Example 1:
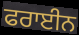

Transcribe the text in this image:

ਫਰਾਈਨ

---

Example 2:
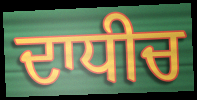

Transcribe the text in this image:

ਦਾਧੀਚ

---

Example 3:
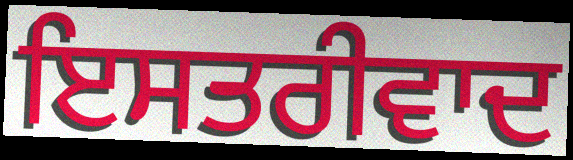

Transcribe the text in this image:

ਇਸਤਰੀਵਾਦ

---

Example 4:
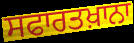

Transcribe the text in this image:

ਸਫਾਰਤਖ਼ਾਨਾ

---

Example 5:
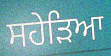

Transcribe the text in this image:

ਸਹੇੜਿਆ